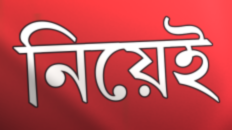
নিয়েই